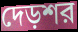
দেড়শর